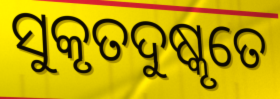
ସୁକୃତଦୁଷ୍କୃତେ